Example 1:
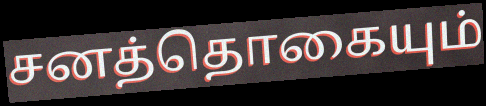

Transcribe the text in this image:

சனத்தொகையும்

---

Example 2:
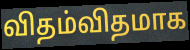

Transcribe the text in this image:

விதம்விதமாக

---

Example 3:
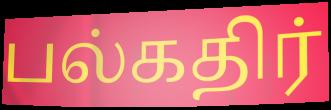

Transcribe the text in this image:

பல்கதிர்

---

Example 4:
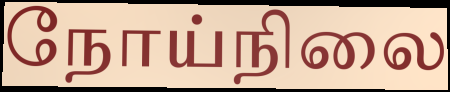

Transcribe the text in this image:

நோய்நிலை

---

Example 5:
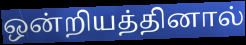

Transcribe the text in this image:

ஒன்றியத்தினால்